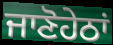
ਜਾਣੋਹੇਠਾਂ